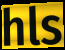
hls